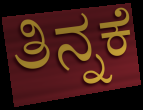
ತಿನ್ನಕೆ